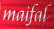
maifal